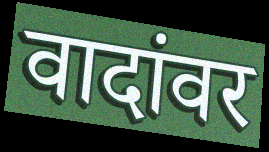
वादांवर